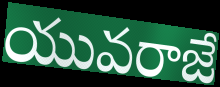
యువరాజే